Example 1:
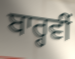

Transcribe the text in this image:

ਬਾਰ੍ਹਵੀਂ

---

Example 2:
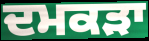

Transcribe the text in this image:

ਦਮਕੜਾ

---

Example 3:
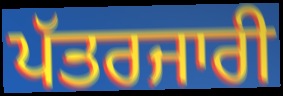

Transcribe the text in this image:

ਪੱਤਰਜਾਰੀ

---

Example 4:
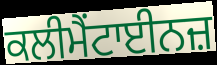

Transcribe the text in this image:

ਕਲੀਮੈਂਟਾਈਨਜ਼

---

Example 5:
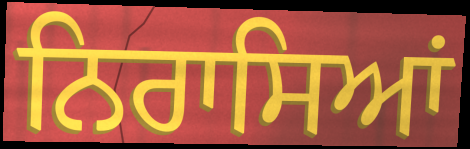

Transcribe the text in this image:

ਨਿਰਾਸਿਆਂ